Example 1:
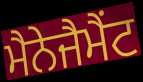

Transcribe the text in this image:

ਮੈਨੇਜੈਮੈਂਟ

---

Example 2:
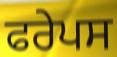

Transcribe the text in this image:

ਫਰੇਪਸ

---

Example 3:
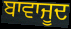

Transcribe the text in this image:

ਬਾਵਾਜੂਦ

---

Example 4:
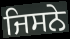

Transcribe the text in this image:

ਜਿਸਨੇ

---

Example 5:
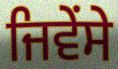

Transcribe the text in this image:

ਜਿਵੇਂਸੇ